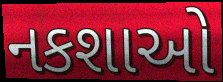
નકશાઓ